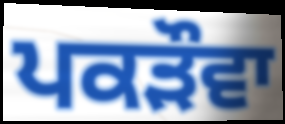
ਪਕੜੌਵਾ